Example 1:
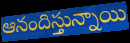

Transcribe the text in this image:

ఆనందిస్తున్నాయి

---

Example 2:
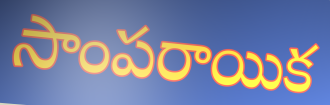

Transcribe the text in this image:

సాంపరాయిక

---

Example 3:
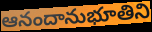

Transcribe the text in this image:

ఆనందానుభూతిని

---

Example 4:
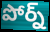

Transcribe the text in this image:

పోర్న్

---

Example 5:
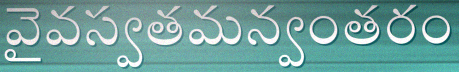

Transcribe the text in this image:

వైవస్వతమన్వంతరం